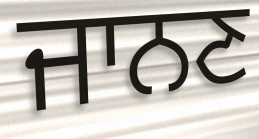
ਜਾਨਣ